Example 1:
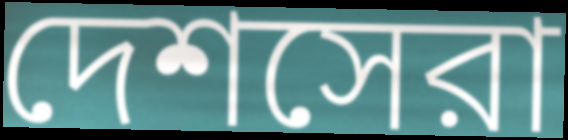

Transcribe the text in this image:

দেশসেরা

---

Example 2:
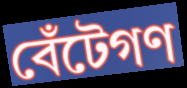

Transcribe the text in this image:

বেঁটেগণ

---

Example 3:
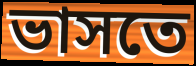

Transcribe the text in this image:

ভাসতে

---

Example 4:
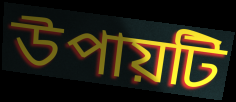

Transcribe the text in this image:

উপায়টি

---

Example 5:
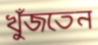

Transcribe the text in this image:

খুঁজতেন